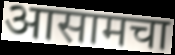
आसामचा